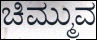
ಚಿಮ್ಮುವ